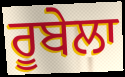
ਰੂਬੇਲਾ